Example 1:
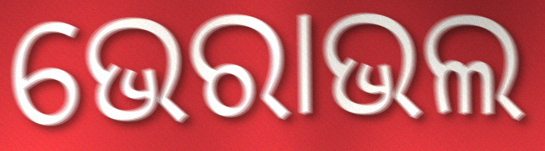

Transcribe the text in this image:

ଭେରାଭଲ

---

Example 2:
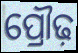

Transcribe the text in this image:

ପ୍ରୌଢ଼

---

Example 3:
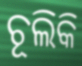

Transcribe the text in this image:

ଚୂଲିକି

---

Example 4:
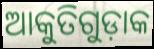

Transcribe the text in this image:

ଆକୁତିଗୁଡ଼ାକ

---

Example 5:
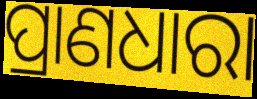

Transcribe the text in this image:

ପ୍ରାଣଧାରା